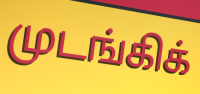
முடங்கிக்